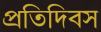
প্রতিদিবস